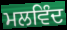
ਮਲਵਿੰਦ